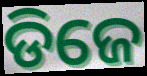
ଡିଜେ